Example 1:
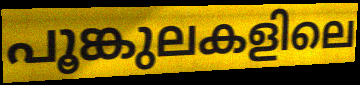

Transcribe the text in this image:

പൂങ്കുലകളിലെ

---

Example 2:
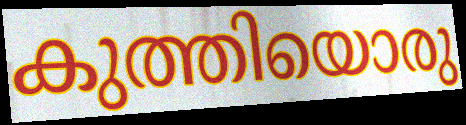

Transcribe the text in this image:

കുത്തിയൊരു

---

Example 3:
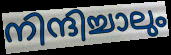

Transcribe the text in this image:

നിന്ദിച്ചാലും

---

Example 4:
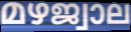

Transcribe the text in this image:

മഴജ്വാല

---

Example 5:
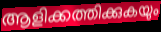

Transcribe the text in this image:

ആളിക്കത്തിക്കുകയും